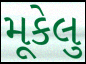
મૂકેલુ